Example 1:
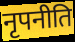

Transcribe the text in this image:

नृपनीति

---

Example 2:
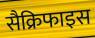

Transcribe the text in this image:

सैक्रिफाइस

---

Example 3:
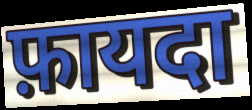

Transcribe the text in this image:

फ़ायदा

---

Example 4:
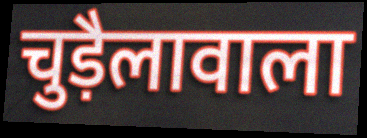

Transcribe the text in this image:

चुड़ैलावाला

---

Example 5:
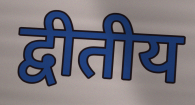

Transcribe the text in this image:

द्वीतीय